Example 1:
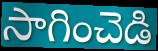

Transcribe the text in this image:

సాగించెడి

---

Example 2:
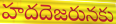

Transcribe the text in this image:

హదదెజరునకు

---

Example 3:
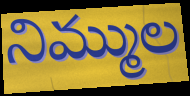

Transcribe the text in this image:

నిమ్ముల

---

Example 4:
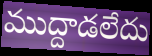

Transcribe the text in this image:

ముద్దాడలేదు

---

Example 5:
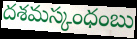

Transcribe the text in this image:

దశమస్కంధంబు